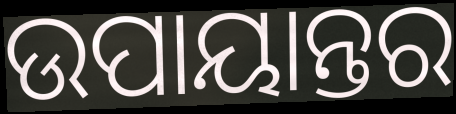
ଉପାୟାନ୍ତର